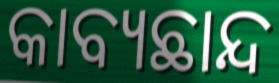
କାବ୍ୟଛାନ୍ଦ